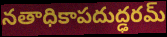
నతాధికాపదుద్ఢరమ్